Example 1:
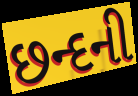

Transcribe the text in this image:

છન્દની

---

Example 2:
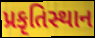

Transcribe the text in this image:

પ્રકૃતિસ્થાન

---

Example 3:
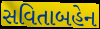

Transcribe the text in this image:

સવિતાબહેન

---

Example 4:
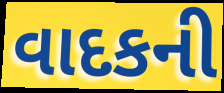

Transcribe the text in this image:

વાદકની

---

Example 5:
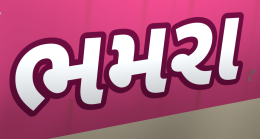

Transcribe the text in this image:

ભમરા